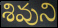
శివుని